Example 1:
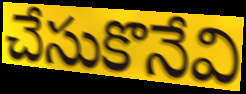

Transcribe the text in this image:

చేసుకొనేవి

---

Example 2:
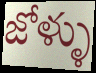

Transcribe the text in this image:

జోళ్ళు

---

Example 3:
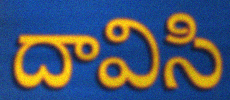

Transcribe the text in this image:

దావిసి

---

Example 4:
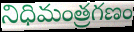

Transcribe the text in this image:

నిధిమంత్రగణం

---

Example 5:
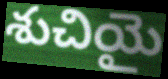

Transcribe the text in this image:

శుచియై